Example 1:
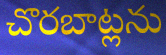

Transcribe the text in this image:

చొరబాట్లను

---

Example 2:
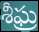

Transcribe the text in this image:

శీఘ్ర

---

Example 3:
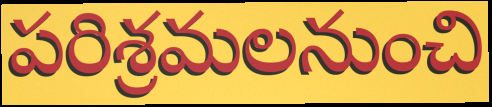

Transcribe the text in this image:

పరిశ్రమలనుంచి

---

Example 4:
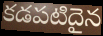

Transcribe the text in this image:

కడపటిదైన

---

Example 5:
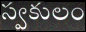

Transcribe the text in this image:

స్వకులం